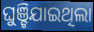
ଘୁଞ୍ଚିଯାଇଥିଲା